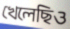
খেলেছিও